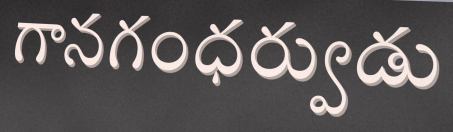
గానగంధర్వుడు